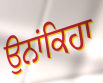
ਉਨਾਂਕਿਹਾ